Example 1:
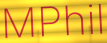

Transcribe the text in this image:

MPhil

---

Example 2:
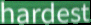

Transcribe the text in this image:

hardest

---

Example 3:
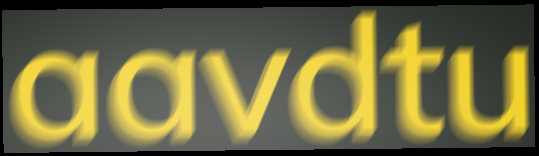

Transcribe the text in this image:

aavdtu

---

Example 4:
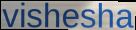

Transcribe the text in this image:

vishesha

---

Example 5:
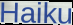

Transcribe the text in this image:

Haiku